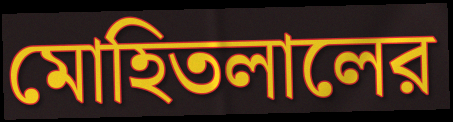
মোহিতলালের